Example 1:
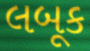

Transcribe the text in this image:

લબૂક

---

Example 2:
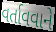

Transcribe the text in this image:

વર્તાવવાને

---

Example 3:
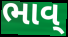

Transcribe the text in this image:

ભાવ્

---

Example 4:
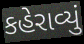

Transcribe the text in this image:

કહેરાવ્યું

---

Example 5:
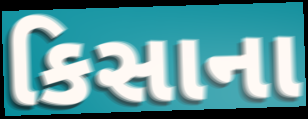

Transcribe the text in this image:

કિસાના